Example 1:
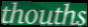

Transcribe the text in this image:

thouths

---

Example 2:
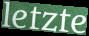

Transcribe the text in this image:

letzte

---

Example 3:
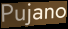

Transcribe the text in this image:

Pujano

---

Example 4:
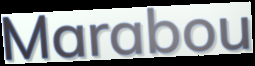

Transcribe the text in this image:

Marabou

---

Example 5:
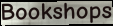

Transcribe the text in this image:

Bookshops